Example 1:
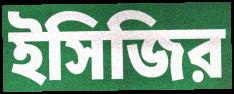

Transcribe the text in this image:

ইসিজির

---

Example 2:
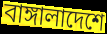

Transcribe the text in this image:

বাঙ্গালাদেশে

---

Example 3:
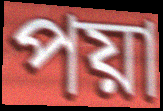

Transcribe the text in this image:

পয়া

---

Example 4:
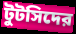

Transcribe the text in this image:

টুটসিদের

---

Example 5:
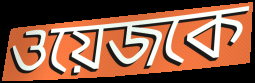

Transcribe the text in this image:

ওয়েজকে